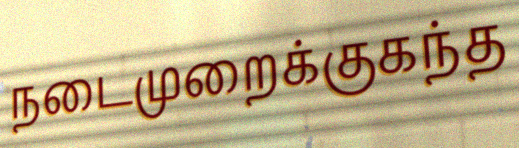
நடைமுறைக்குகந்த